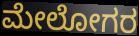
ಮೇಲೋಗರ